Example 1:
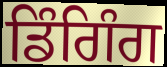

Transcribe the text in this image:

ਡਿੰਗਿੰਗ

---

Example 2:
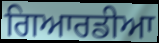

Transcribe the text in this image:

ਗਿਆਰਡੀਆ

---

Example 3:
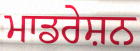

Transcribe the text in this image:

ਮਾਡਰੇਸ਼ਨ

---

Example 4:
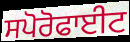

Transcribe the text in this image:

ਸਪੋਰੋਫਾਈਟ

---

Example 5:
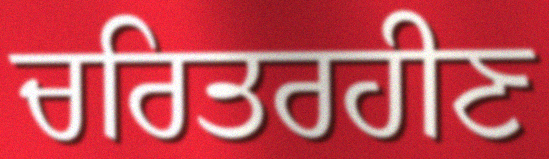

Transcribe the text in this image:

ਚਰਿਤਰਹੀਣ